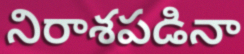
నిరాశపడినా